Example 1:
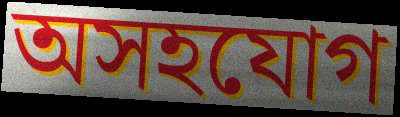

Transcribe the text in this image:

অসহযোগ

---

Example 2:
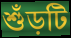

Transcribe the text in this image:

শুঁড়টি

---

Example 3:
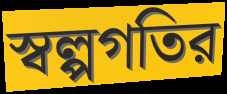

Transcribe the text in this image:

স্বল্পগতির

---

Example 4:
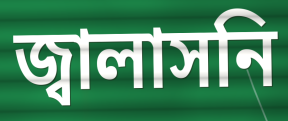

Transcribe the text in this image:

জ্বালাসনি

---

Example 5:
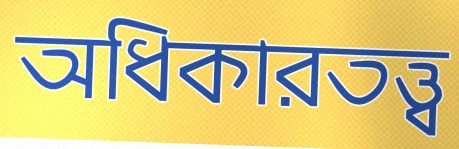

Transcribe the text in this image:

অধিকারতত্ত্ব